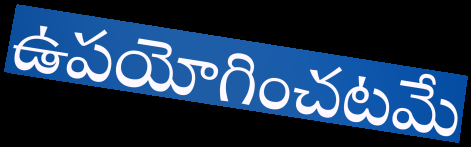
ఉపయోగించటమే